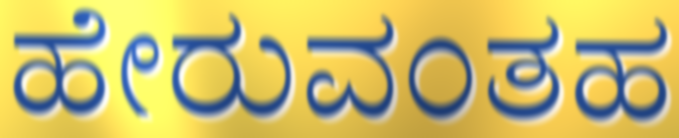
ಹೇರುವಂತಹ